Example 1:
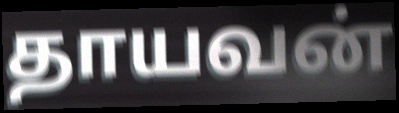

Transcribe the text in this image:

தாயவன்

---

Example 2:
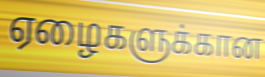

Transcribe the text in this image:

ஏழைகளுக்கான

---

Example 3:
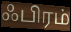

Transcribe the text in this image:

ஃபிரம்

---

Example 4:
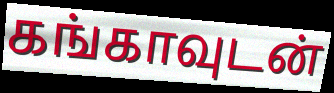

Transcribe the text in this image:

கங்காவுடன்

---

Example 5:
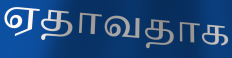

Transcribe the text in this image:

ஏதாவதாக